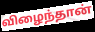
விழைந்தான்